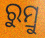
ରୁମ୍ରୁ